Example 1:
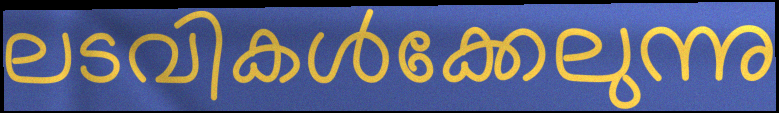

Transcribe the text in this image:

ലടവികൾക്കേലുന്നു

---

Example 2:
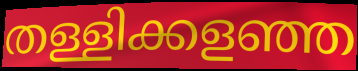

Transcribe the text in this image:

തള്ളിക്കളഞ്ഞ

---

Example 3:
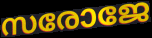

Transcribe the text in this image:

സരോജേ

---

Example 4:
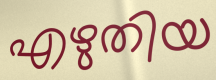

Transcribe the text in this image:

എഴുതിയ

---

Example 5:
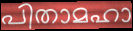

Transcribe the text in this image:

പിതാമഹാ